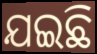
ଯଇଛି